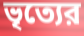
ভৃত্যের